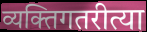
व्यक्तिगतरीत्या